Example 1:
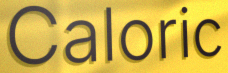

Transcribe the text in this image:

Caloric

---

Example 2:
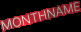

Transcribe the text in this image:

MONTHNAME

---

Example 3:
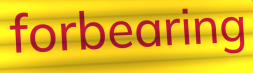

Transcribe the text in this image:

forbearing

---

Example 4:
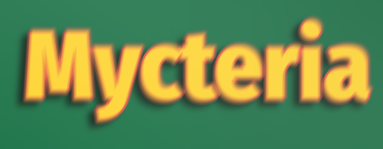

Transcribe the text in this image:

Mycteria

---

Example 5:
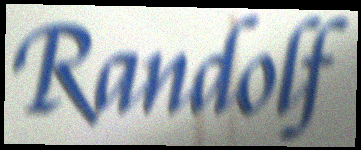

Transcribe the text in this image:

Randolf